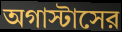
অগাস্টাসের